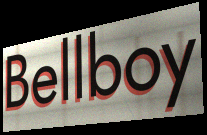
Bellboy